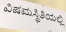
ವಿಷಮಸ್ಥಿತಿಯಲ್ಲಿ